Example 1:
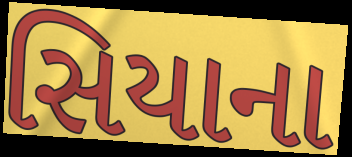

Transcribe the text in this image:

સિયાના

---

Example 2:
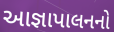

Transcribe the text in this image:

આજ્ઞાપાલનનો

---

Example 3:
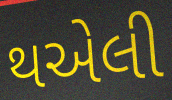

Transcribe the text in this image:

થએલી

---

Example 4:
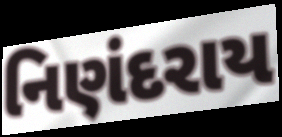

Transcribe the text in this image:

નિણંદરાય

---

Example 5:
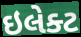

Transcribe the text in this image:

ઇલેક્ટ